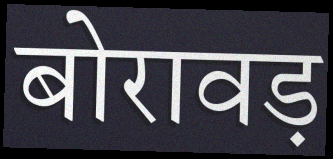
बोरावड़